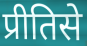
प्रीतिसे